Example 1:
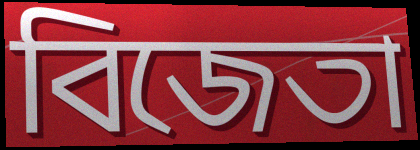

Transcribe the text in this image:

বিজেতা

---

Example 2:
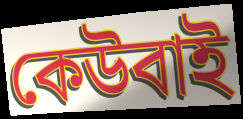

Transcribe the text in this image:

কেউবাই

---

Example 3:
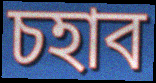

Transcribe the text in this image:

চহাব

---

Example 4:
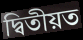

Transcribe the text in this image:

দ্বিতীয়ত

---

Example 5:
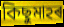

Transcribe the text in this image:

কিছুমাহৰ